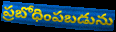
ప్రబోధింపబడును